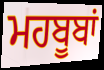
ਮਹਬੂਬਾਂ